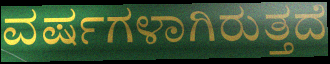
ವರ್ಷಗಳಾಗಿರುತ್ತದೆ